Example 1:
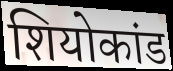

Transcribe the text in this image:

शियोकांड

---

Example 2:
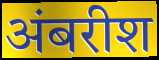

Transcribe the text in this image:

अंबरीश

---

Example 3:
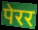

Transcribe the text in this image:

पेरर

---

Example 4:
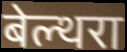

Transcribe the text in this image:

बेल्थरा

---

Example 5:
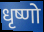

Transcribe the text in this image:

धृष्णो